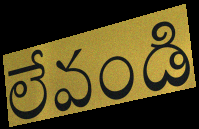
లేవండి